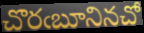
చొరఁబూనినచో